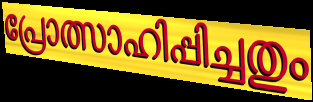
പ്രോത്സാഹിപ്പിച്ചതും